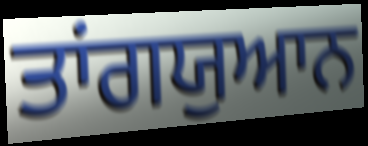
ਤਾਂਗਯੁਆਨ